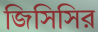
জিসিসির